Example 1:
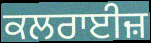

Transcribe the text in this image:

ਕਲਰਾਈਜ਼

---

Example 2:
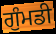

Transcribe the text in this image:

ਗੁੰਮਡੀ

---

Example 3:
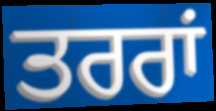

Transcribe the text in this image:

ਤਰਰਾਂ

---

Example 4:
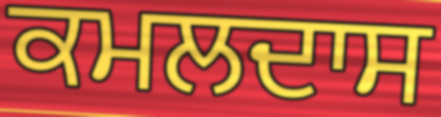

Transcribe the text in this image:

ਕਮਲਦਾਸ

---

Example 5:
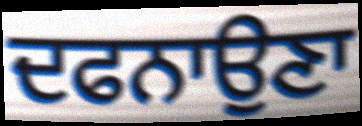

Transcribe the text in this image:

ਦਫਨਾਉਣਾ